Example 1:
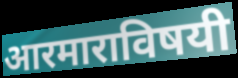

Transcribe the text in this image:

आरमाराविषयी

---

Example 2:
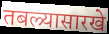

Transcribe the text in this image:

तबल्यासारखे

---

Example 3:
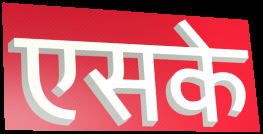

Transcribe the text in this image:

एसके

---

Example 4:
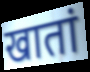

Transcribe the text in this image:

खातां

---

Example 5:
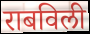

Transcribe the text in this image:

राबविली